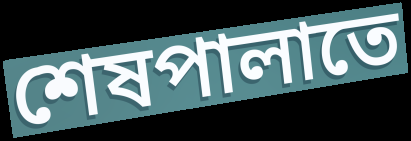
শেষপালাতে